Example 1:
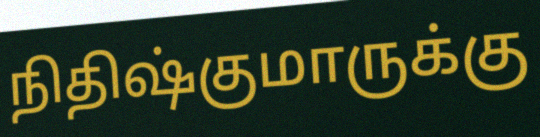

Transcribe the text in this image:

நிதிஷ்குமாருக்கு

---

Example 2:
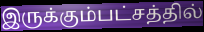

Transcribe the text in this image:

இருக்கும்பட்சத்தில்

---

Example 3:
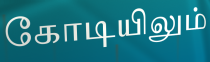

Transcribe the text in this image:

கோடியிலும்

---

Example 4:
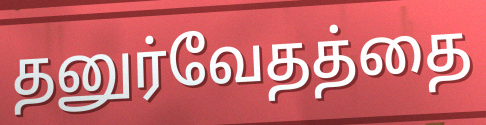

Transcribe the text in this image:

தனுர்வேதத்தை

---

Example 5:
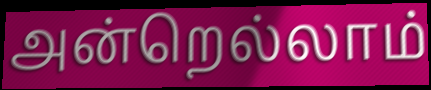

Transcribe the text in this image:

அன்றெல்லாம்